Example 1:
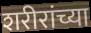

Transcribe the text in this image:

शरीरांच्या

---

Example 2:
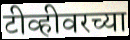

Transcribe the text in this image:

टीव्हीवरच्या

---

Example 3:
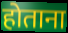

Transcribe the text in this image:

होताना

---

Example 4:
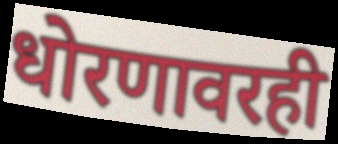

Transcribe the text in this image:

धोरणावरही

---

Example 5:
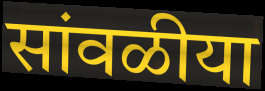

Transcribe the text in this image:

सांवळीया